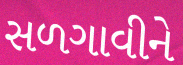
સળગાવીને